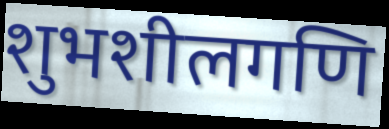
शुभशीलगणि